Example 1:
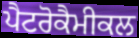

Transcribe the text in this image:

ਪੈਟਰੋਕੈਮੀਕਲ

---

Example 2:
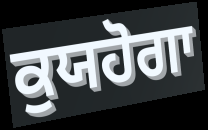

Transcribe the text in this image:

ਕੁਯਹੋਗਾ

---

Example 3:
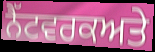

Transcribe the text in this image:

ਨੈੱਟਵਰਕਅਤੇ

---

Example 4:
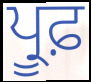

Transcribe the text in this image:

ਪ੍ਰੂਫ਼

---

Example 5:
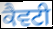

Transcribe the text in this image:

ਕੈਵਟੀ